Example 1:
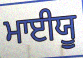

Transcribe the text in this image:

ਮਾਈਯੂ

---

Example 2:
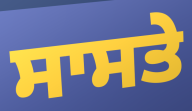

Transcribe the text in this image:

ਸਾਸਤੇ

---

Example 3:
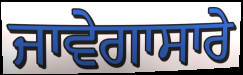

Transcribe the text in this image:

ਜਾਵੇਗਾਸਾਰੇ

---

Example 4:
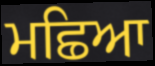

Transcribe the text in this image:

ਮਛਿਆ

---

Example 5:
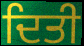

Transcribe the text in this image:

ਦਿਤੀ